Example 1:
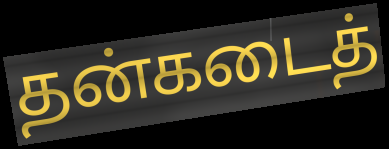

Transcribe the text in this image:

தன்கடைத்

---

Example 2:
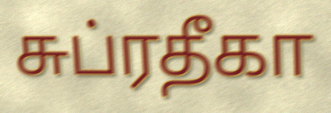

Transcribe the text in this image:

சுப்ரதீகா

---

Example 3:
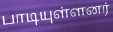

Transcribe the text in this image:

பாடியுள்ளனர்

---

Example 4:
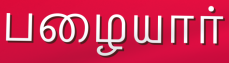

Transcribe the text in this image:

பழையார்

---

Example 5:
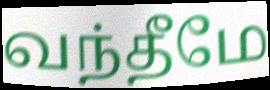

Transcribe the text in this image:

வந்தீமே